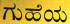
ಗುಹೆಯ